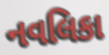
નવલિકા